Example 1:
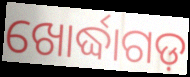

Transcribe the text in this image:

ଖୋର୍ଦ୍ଧାଗଡ଼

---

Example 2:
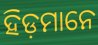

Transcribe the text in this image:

ହିଡ଼ମାନେ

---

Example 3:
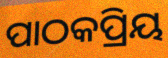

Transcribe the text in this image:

ପାଠକପ୍ରିୟ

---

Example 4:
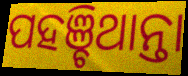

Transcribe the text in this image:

ପହଞ୍ଚିଥାନ୍ତା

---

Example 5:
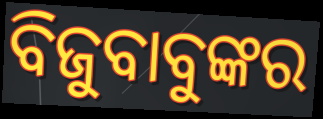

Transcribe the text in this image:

ବିଜୁବାବୁଙ୍କର